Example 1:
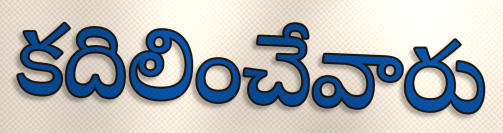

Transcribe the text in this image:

కదిలించేవారు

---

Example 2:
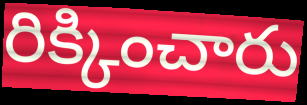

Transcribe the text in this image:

రిక్కించారు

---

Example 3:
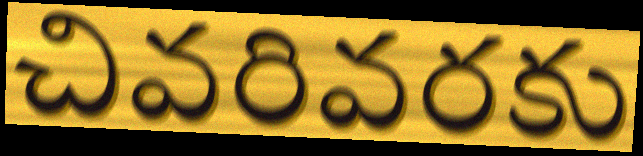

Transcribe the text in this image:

చివరివరకు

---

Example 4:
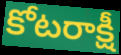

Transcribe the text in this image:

కోటరాక్షీ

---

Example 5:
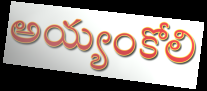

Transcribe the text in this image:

అయ్యంకోలి